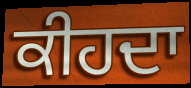
ਕੀਹਦਾ